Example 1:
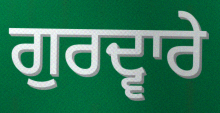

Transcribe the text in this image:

ਗੁਰਦ੍ਵਾਰੇ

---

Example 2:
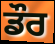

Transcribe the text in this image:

ਡੌਰ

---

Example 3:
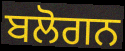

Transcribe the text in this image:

ਬਲੋਗਨ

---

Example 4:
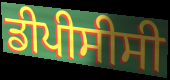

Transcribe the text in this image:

ਡੀਪੀਸੀਸੀ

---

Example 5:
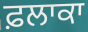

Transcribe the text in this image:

ਫ਼ਲਾਕਾ